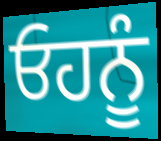
ਓਹਨੂੰ